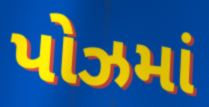
પોઝમાં